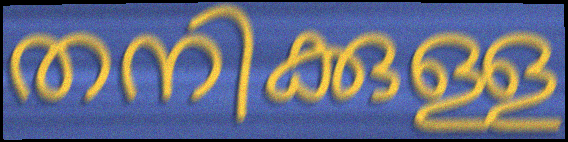
തനിക്കുള്ള